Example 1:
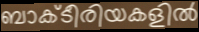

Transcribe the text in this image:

ബാക്ടീരിയകളിൽ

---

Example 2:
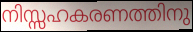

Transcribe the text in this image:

നിസ്സഹകരണത്തിനു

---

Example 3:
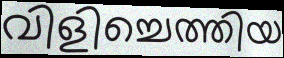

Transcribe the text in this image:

വിളിച്ചെത്തിയ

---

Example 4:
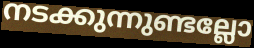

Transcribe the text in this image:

നടക്കുന്നുണ്ടല്ലോ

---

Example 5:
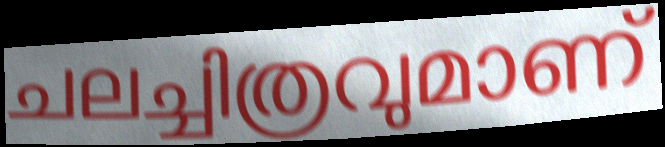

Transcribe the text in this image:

ചലച്ചിത്രവുമാണ്